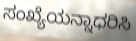
ಸಂಖ್ಯೆಯನ್ನಾಧರಿಸಿ